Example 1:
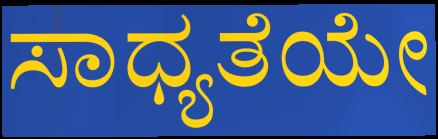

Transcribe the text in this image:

ಸಾಧ್ಯತೆಯೇ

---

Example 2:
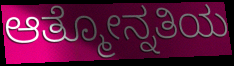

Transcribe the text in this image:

ಆತ್ಮೋನ್ನತಿಯ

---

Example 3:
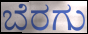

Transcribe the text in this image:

ಬೆರಗು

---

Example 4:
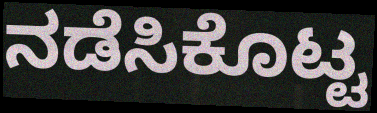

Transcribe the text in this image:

ನಡೆಸಿಕೊಟ್ಟ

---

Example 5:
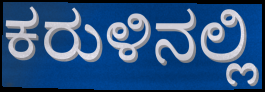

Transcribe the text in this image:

ಕರುಳಿನಲ್ಲಿ